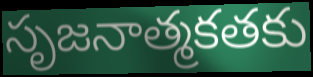
సృజనాత్మకతకు